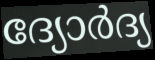
ദ്യോർദ്യ